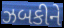
ઝબકીને